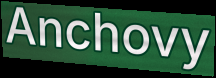
Anchovy